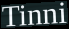
Tinni